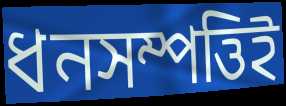
ধনসম্পত্তিই